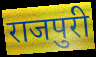
राजपुरी